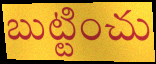
బుట్టించు